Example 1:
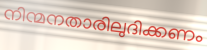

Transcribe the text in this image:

നിന്മനതാരിലുദിക്കണം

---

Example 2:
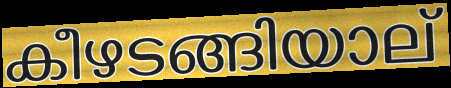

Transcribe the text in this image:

കീഴടങ്ങിയാല്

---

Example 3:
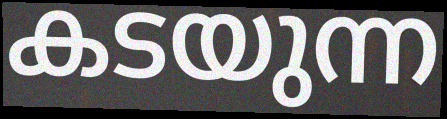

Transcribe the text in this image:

കടയുന്ന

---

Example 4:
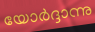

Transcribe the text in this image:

യോർദ്ദാന്നു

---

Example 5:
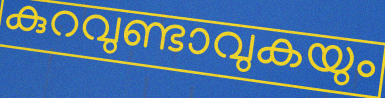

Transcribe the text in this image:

കുറവുണ്ടാവുകയും